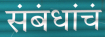
संबंधांचं